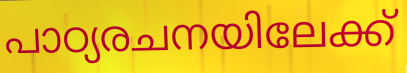
പാഠ്യരചനയിലേക്ക്